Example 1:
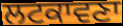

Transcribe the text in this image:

ਲਟਕਾਵਣਾ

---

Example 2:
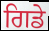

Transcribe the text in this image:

ਗਿਡੇ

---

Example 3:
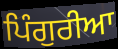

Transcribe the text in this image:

ਪਿੰਗੁਰੀਆ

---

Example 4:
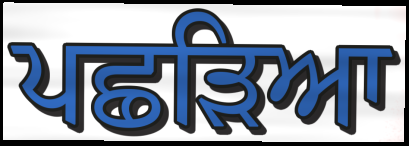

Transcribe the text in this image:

ਪਛੜਿਆ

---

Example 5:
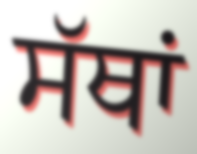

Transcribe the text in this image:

ਸੱਥਾਂ